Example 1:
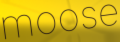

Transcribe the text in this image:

moose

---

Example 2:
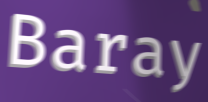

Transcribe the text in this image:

Baray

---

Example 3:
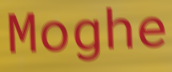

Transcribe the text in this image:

Moghe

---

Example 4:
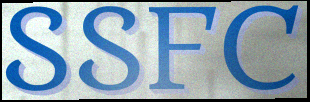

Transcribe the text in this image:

SSFC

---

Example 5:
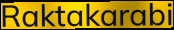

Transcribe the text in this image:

Raktakarabi